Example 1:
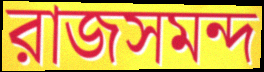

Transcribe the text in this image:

রাজসমন্দ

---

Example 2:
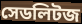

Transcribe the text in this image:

সেডলিটজ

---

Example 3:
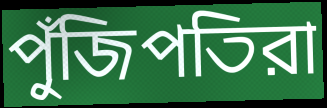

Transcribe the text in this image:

পুঁজিপতিরা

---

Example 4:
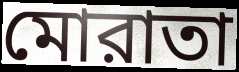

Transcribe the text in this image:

মোরাতা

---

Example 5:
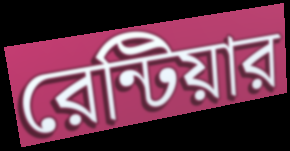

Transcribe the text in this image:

রেন্টিয়ার